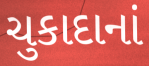
ચુકાદાનાં